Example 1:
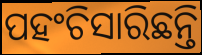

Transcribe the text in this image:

ପହଂଚିସାରିଛନ୍ତି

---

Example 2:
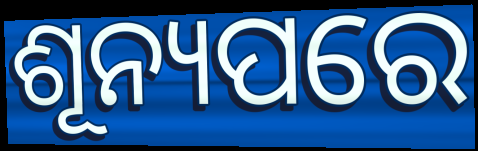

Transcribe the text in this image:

ଶୂନ୍ୟପରେ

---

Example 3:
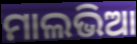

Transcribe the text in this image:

ମାଲଭିଆ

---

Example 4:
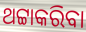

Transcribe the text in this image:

ଥଟ୍ଟାକରିବା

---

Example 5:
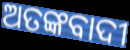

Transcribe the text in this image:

ଅତଙ୍କବାଦୀ